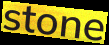
stone